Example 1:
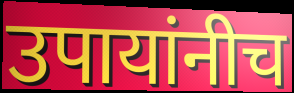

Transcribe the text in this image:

उपायांनीच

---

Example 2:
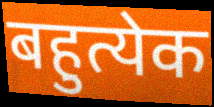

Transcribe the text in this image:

बहुत्येक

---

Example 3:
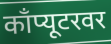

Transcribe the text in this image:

काँप्यूटरवर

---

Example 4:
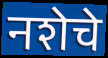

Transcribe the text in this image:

नशेचे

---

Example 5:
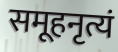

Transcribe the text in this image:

समूहनृत्यं